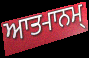
ਆਤ੍ਮਾਨਮ੍